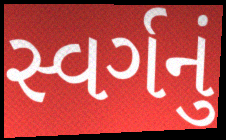
સ્વર્ગનું